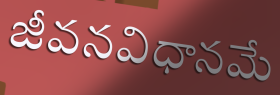
జీవనవిధానమే